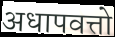
अधापवत्तो